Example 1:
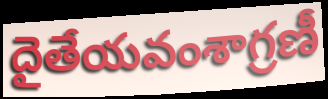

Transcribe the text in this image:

దైతేయవంశాగ్రణీ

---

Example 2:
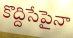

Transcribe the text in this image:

కొద్దిసేపైనా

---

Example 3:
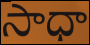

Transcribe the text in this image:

సాధా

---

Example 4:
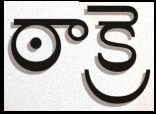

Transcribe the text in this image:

ఠాక్రె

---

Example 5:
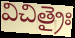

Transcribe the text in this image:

విచిత్రైః